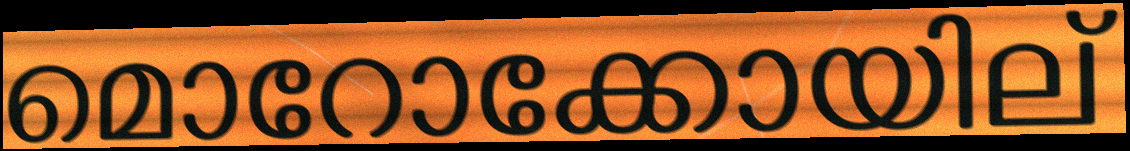
മൊറോക്കോയില്